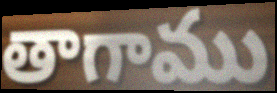
తాగాము